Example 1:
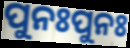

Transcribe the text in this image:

ପୁନଃପୁନଃ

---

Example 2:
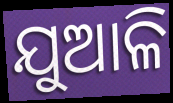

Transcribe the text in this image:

ଯୁଆଳି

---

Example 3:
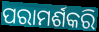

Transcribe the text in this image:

ପରାମର୍ଶକରି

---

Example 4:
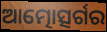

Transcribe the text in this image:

ଆତ୍ମୋତ୍ସର୍ଗର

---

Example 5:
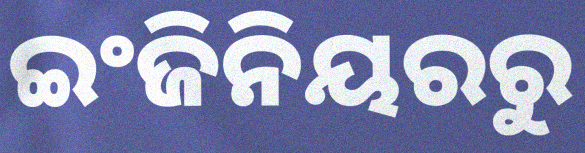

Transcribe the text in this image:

ଇଂଜିନିୟରରୁ